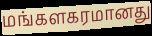
மங்களகரமானது